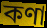
কণা